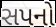
સપનો